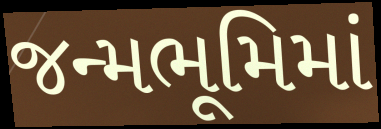
જન્મભૂમિમાં